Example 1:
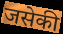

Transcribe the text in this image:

जसेकी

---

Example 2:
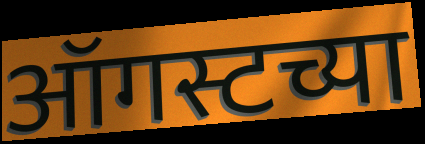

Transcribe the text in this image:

ऑगस्टच्या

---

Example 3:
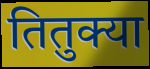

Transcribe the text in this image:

तितुक्या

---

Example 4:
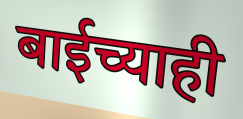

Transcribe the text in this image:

बाईच्याही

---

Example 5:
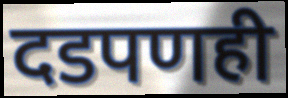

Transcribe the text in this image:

दडपणही